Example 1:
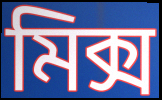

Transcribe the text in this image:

মিক্স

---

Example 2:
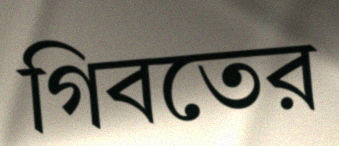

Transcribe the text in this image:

গিবতের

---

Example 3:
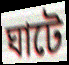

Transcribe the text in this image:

ঘাটে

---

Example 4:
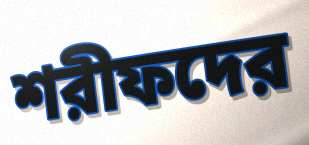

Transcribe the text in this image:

শরীফদের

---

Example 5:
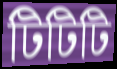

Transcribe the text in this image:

টিটিটি